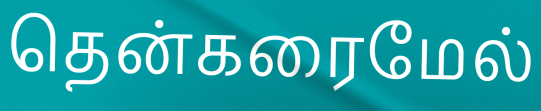
தென்கரைமேல்